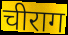
चीराग